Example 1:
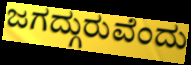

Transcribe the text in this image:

ಜಗದ್ಗುರುವೆಂದು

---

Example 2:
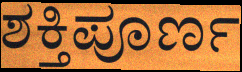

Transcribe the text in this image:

ಶಕ್ತಿಪೂರ್ಣ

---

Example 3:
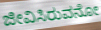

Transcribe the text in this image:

ಜೀವಿಸಿರುವನೋ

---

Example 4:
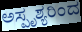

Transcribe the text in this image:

ಅಸ್ಪೃಶ್ಯರಿಂದ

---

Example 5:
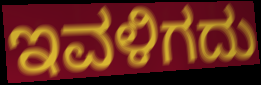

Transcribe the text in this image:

ಇವಳಿಗದು